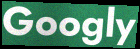
Googly